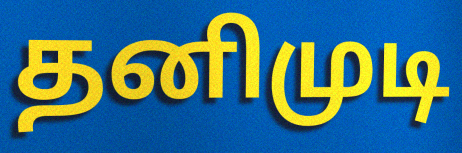
தனிமுடி